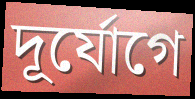
দূর্যোগে